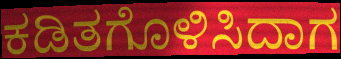
ಕಡಿತಗೊಳಿಸಿದಾಗ